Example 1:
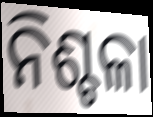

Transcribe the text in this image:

ନିଶ୍ଚଳା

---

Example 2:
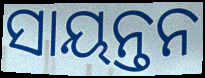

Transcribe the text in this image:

ସାୟନ୍ତନ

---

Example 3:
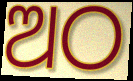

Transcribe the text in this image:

ଅଠ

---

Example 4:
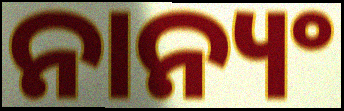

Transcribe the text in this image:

ନାନ୍ୟଂ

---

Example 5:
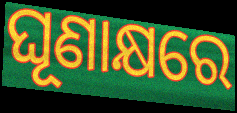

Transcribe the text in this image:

ଘୂଣାକ୍ଷରେ